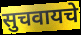
सुचवायचे